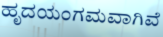
ಹೃದಯಂಗಮವಾಗಿವೆ